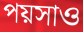
পয়সাও